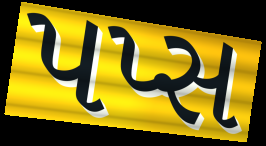
પપ્સ